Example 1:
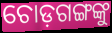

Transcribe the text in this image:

ଚୋଡ଼ଗଙ୍ଗଙ୍କୁ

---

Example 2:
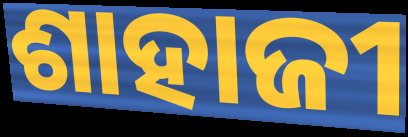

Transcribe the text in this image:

ଶାହାଜୀ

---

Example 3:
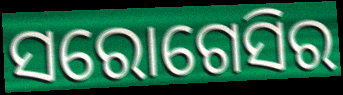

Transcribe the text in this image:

ସରୋଗେସିର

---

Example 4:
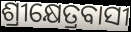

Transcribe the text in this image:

ଶ୍ରୀକ୍ଷେତ୍ରବାସୀ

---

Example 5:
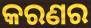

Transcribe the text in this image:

କରଣର